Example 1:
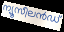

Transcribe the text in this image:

ന്യൂസീലൻഡ്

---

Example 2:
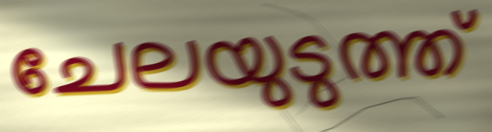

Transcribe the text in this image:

ചേലയുടുത്ത്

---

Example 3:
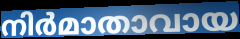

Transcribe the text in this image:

നിർമാതാവായ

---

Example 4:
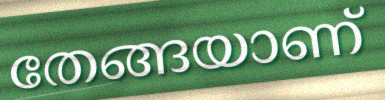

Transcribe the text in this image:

തേങ്ങയാണ്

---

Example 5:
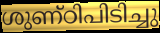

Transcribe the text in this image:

ശുണ്ഠിപിടിച്ചു